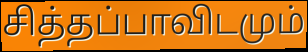
சித்தப்பாவிடமும்